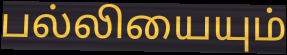
பல்லியையும்